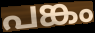
പങ്കം